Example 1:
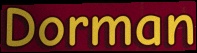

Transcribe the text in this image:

Dorman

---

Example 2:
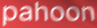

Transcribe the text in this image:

pahoon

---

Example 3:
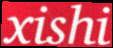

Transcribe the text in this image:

xishi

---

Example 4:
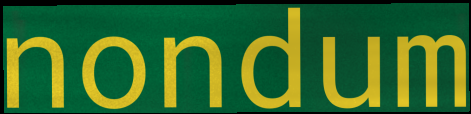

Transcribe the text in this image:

nondum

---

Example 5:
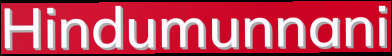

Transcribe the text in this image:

Hindumunnani